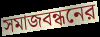
সমাজবন্ধনের